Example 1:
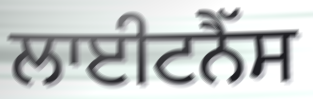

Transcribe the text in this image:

ਲਾਈਟਨੈੱਸ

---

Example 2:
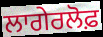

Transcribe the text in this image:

ਲਾਗੇਰਲੋਫ਼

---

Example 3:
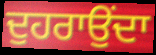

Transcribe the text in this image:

ਦੁਹਰਾਉਂਦਾ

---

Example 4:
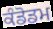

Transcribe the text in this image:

ਕੰਡੋਡਮ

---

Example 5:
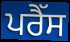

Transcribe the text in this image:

ਪਰੈੱਸ